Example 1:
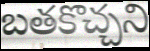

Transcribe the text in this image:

బతకొచ్చని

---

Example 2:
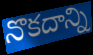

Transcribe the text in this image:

నొకదాన్ని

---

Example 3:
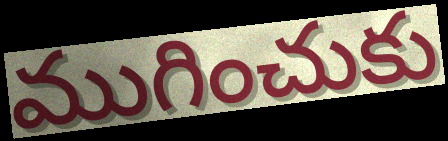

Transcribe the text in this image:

ముగించుకు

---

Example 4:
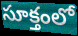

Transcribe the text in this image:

సూక్తంలో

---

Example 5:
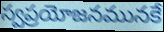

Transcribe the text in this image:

స్వప్రయోజనమునకే